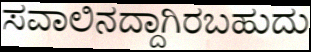
ಸವಾಲಿನದ್ದಾಗಿರಬಹುದು